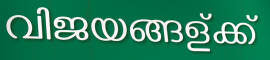
വിജയങ്ങള്ക്ക്